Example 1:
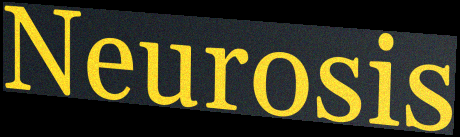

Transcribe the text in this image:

Neurosis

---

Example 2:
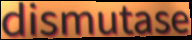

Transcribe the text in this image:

dismutase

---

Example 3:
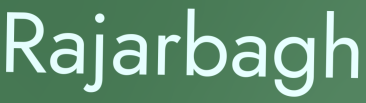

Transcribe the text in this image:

Rajarbagh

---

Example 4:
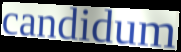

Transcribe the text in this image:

candidum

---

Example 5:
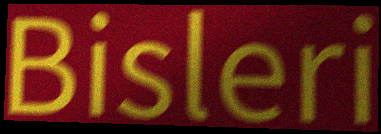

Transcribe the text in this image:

Bisleri